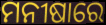
ମନୀଷାରେ